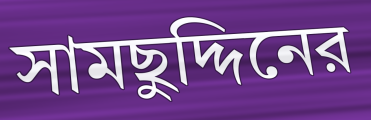
সামছুদ্দিনের